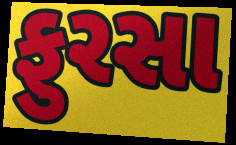
ફુરસા